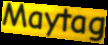
Maytag